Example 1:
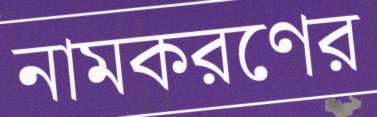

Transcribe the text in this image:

নামকরণের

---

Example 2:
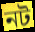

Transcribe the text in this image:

নট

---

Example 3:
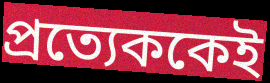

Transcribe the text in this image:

প্রত্যেককেই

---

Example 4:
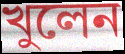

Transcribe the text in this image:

খুলেন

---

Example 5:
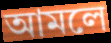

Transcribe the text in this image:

আমলে